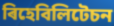
ৰিহেবিলিটেচন